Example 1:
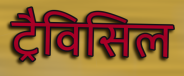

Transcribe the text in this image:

ट्रैविसिल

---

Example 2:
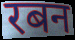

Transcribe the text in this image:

रबन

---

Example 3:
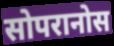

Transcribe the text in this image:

सोपरानोस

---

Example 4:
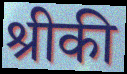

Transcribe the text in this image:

श्रीकी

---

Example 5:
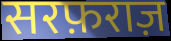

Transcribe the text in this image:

सरफ़राज़